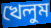
খেলুম